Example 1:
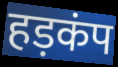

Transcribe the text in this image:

हड़कंप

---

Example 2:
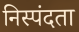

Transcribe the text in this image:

निस्पंदता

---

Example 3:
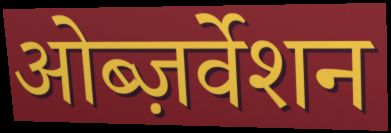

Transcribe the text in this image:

ओब्ज़र्वेशन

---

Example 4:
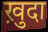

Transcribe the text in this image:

ख़ुदा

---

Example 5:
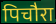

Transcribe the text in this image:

पिचौरा